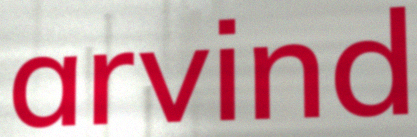
arvind